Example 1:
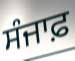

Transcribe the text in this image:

ਸੰਜਾਫ਼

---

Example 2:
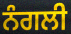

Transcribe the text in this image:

ਨੰਗਲੀ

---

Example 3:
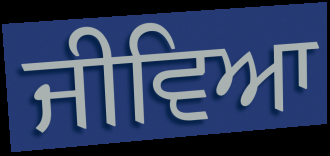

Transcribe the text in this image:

ਜੀਵਿਆ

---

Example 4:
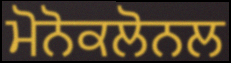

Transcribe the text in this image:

ਮੋਨੋਕਲੋਨਲ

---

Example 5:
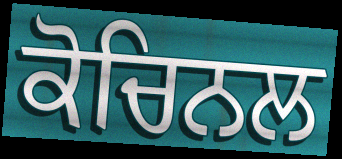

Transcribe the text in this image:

ਕੋਚਿਨਲ